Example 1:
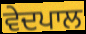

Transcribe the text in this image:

ਵੇਦਪਾਲ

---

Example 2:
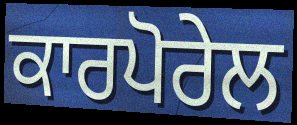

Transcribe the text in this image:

ਕਾਰਪੋਰੇਲ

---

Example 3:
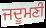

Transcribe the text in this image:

ਜਦੂਮਣੀ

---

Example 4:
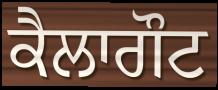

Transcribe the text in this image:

ਕੈਲਾਗੌਟ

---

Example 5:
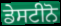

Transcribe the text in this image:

ਡੇਸਟੀਨੋ